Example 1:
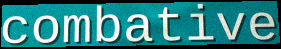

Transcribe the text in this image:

combative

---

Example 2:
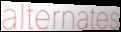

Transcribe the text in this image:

alternates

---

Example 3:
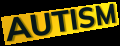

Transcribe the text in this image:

AUTISM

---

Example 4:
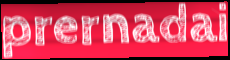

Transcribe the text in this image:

prernadai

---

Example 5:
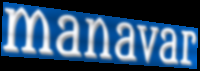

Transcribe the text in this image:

manavar